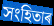
সংহিতাৰ